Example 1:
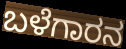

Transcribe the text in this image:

ಬಳೆಗಾರನ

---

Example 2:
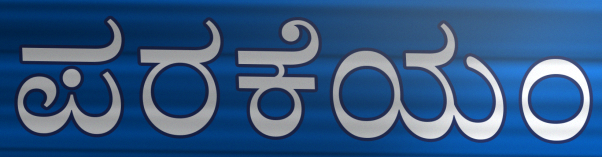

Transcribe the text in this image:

ಪರಕೆಯಂ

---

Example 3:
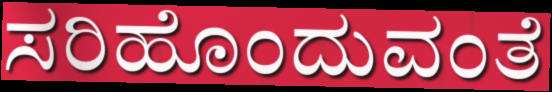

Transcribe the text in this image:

ಸರಿಹೊಂದುವಂತೆ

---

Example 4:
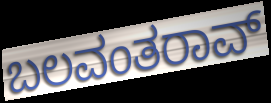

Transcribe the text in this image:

ಬಲವಂತರಾವ್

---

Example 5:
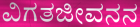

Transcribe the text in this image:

ವಿಗತಜೀವನನ